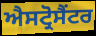
ਐਸਟ੍ਰੋਸੈਂਟਰ